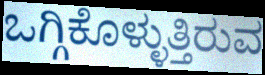
ಒಗ್ಗಿಕೊಳ್ಳುತ್ತಿರುವ